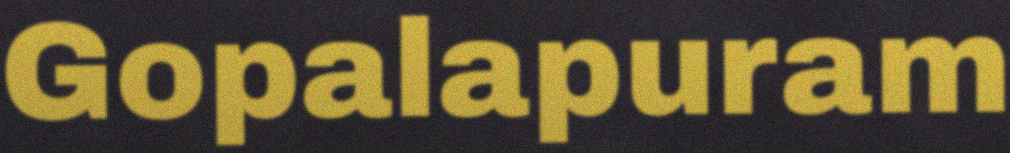
Gopalapuram